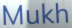
Mukh